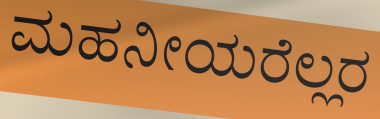
ಮಹನೀಯರೆಲ್ಲರ